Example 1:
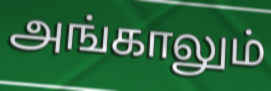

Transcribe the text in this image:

அங்காலும்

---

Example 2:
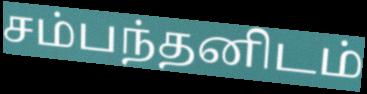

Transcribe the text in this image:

சம்பந்தனிடம்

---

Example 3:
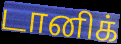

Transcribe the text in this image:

டானிக்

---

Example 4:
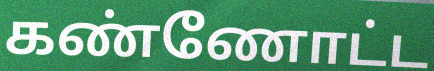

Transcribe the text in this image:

கண்ணோட்ட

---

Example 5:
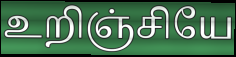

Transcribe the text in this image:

உறிஞ்சியே